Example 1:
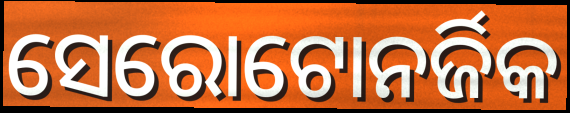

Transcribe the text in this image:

ସେରୋଟୋନର୍ଜିକ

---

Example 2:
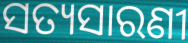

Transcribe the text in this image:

ସତ୍ୟସାରଣୀ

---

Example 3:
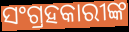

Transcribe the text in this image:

ସଂଗ୍ରହକାରୀଙ୍କ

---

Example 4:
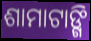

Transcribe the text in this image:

ଶାମାଟାଙ୍ଗି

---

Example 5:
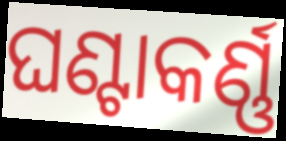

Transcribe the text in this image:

ଘଣ୍ଟାକର୍ଣ୍ଣ